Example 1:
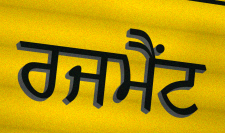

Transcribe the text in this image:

ਰਜਮੈਂਟ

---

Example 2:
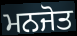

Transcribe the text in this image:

ਮਨਜੋਤ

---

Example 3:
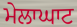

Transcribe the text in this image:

ਮੇਲਾਘਾਟ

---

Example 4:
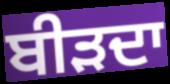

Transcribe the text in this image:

ਬੀੜਦਾ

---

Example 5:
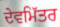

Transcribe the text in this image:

ਦੇਵਮਿੱਤਰ